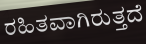
ರಹಿತವಾಗಿರುತ್ತದೆ